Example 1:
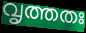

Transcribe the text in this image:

വൃത്തതഃ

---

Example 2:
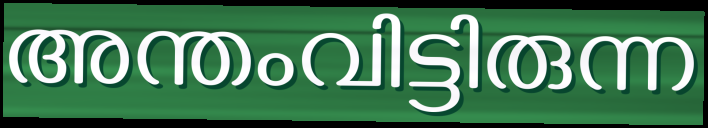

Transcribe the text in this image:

അന്തംവിട്ടിരുന്ന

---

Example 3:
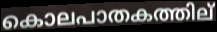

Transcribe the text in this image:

കൊലപാതകത്തില്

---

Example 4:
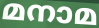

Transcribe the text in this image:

മനാമ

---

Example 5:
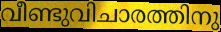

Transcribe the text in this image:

വീണ്ടുവിചാരത്തിനു